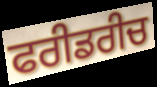
ਫਰੀਡਰੀਚ